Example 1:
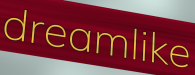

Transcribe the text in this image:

dreamlike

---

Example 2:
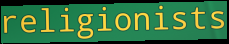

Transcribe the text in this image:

religionists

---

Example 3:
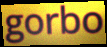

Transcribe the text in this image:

gorbo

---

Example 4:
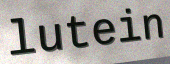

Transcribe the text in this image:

lutein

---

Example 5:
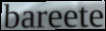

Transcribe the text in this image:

bareete